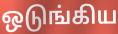
ஒடுங்கிய